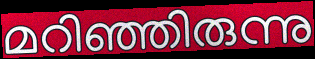
മറിഞ്ഞിരുന്നു